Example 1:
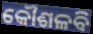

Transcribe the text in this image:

କୌଶଳବି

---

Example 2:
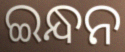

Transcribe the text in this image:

ଇନ୍ଧନ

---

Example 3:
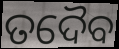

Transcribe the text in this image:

ତଦୈବ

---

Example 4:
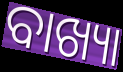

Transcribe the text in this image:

ବାଖ୍ୟା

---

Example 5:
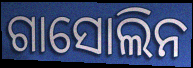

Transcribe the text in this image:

ଗାସୋଲିନ